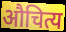
औचित्य